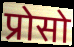
प्रोसो